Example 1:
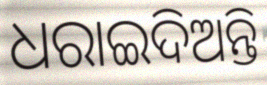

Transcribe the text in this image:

ଧରାଇଦିଅନ୍ତି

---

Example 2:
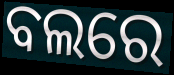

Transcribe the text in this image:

ବଲରେ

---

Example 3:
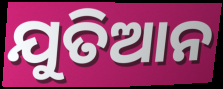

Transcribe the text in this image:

ଯୁତିଆନ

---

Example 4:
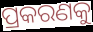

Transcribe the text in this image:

ପ୍ରକରଣକୁ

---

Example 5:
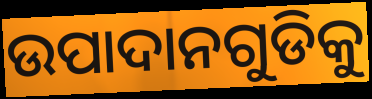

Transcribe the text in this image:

ଉପାଦାନଗୁଡିକୁ